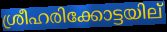
ശ്രീഹരിക്കോട്ടയില്